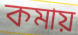
কমায়